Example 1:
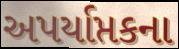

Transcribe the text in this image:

અપર્યાપ્તકના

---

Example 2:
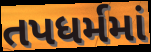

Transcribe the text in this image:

તપધર્મમાં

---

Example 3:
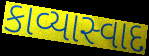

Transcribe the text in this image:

કાવ્યાસ્વાદ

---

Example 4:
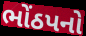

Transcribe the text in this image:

ભોંઠપનો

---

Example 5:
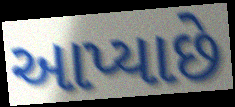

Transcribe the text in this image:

આપ્યાછે